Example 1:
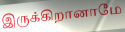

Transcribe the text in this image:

இருக்கிறானாமே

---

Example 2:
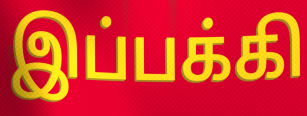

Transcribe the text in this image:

இப்பக்கி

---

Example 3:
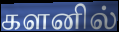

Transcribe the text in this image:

களனில்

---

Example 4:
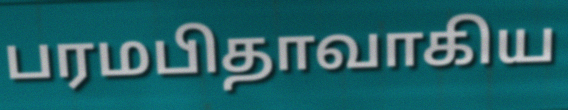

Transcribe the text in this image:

பரமபிதாவாகிய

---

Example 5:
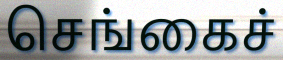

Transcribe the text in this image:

செங்கைச்